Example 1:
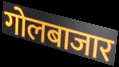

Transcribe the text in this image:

गोलबाजार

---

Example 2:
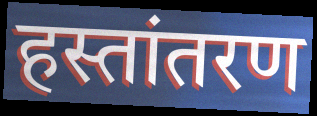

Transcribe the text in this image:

हस्तांतरण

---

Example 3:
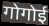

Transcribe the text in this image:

गोगोई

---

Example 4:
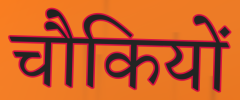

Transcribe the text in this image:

चौकियों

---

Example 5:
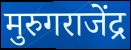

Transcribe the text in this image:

मुरुगराजेंद्र